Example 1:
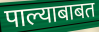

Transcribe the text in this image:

पाल्याबाबत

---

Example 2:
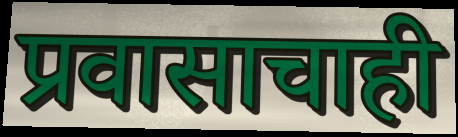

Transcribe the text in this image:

प्रवासाचाही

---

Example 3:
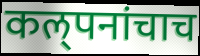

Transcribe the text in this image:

कल्पनांचाच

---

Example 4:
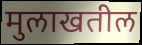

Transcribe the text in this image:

मुलाखतील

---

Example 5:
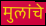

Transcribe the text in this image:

मुलांचे